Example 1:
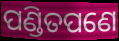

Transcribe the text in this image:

ପଣ୍ଡିତପଣେ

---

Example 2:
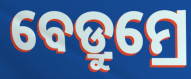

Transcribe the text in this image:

ବେଡ୍ରୁମ୍ରେ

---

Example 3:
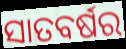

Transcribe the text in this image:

ସାତବର୍ଷର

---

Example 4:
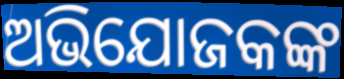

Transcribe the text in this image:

ଅଭିଯୋଜକଙ୍କ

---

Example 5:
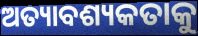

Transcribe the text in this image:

ଅତ୍ୟାବଶ୍ୟକତାକୁ